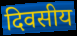
दिवसीय